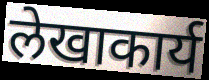
लेखाकार्य